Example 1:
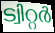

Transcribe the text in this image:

ട്വിറ്റർ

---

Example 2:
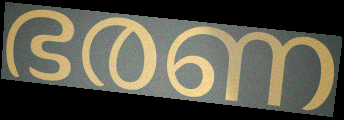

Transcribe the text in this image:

ഭരണ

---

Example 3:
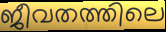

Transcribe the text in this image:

ജീവതത്തിലെ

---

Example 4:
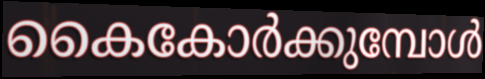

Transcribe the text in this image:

കൈകോർക്കുമ്പോൾ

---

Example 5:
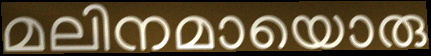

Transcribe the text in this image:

മലിനമായൊരു